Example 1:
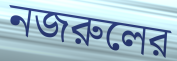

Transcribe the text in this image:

নজরুলের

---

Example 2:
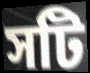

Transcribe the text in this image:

সটি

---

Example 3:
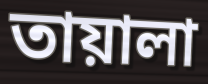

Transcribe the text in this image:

তায়ালা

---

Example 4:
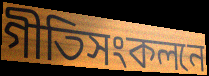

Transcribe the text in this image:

গীতিসংকলনে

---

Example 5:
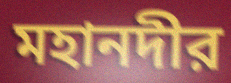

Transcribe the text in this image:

মহানদীর